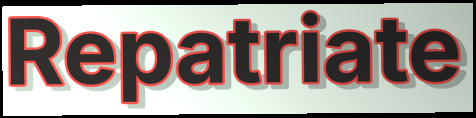
Repatriate